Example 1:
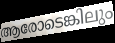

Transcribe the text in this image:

ആരോടെങ്കിലും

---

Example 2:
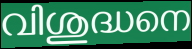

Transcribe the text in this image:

വിശുദ്ധനെ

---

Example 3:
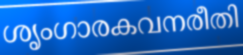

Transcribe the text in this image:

ശൃംഗാരകവനരീതി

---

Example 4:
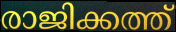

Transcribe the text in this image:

രാജിക്കത്ത്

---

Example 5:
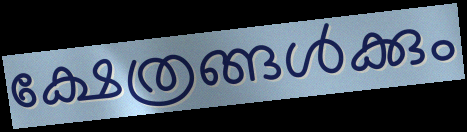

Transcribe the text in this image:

ക്ഷേത്രങ്ങൾക്കും